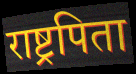
राष्ट्रपिता